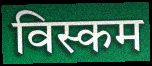
विस्कम